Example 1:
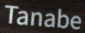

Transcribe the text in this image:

Tanabe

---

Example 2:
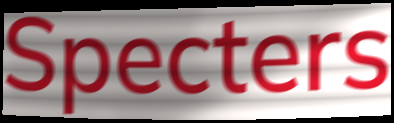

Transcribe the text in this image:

Specters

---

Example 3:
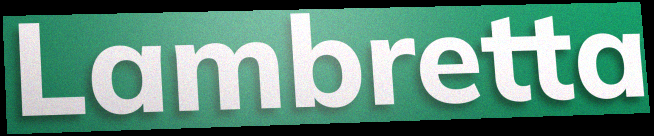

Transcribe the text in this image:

Lambretta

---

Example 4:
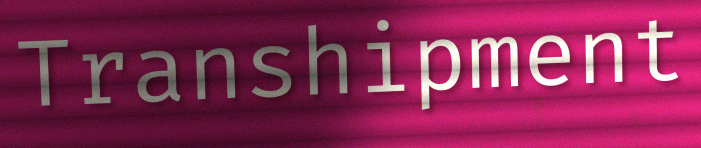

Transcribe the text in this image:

Transhipment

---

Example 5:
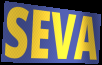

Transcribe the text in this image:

SEVA